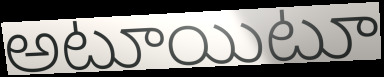
అటూయిటూ